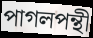
পাগলপন্থী